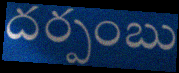
దర్పంబు